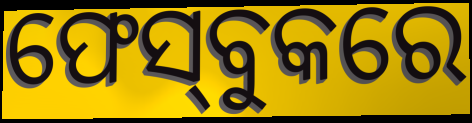
ଫେସ୍‌ବୁକରେ